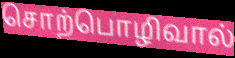
சொற்பொழிவால்